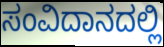
ಸಂವಿದಾನದಲ್ಲಿ